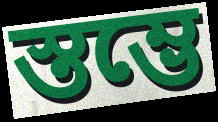
স্তম্ভে